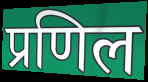
प्रणिल